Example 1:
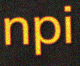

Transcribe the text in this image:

npi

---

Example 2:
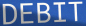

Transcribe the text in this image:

DEBIT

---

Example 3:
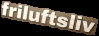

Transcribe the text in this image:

friluftsliv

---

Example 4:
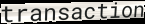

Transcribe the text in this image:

transaction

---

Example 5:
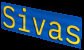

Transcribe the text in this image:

Sivas